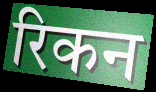
रिकन